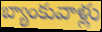
బ్యాంకువాళ్లు